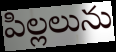
పిల్లలును